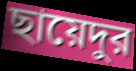
ছায়েদুর